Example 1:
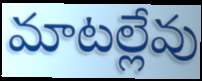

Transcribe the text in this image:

మాటల్లేవు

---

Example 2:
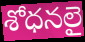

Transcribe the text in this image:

శోధనలై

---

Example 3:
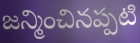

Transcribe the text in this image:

జన్మించినప్పటి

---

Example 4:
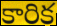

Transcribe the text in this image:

కారిక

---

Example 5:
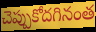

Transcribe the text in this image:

చెప్పుకోదగినంత